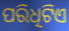
ପରିଧିଟିଏ